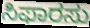
ಸಿಫಾರಸು